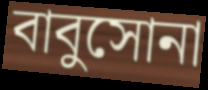
বাবুসোনা